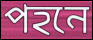
পহনে